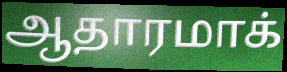
ஆதாரமாக்